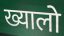
ख्यालो